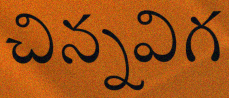
చిన్నవిగ